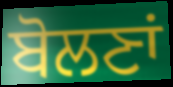
ਬੋਲਣਾਂ